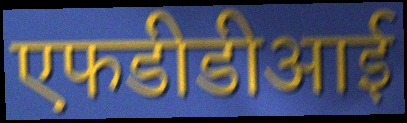
एफडीडीआई